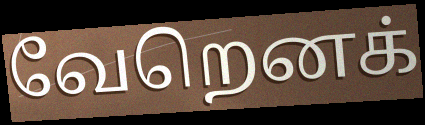
வேறெனக்